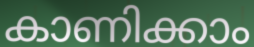
കാണിക്കാം